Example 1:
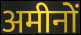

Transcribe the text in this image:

अमीनों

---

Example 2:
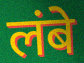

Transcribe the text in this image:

लंबे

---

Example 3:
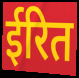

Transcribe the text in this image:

ईरित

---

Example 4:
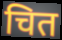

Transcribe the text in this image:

चित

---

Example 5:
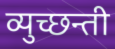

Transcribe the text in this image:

व्युच्छन्ती